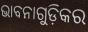
ଭାବନାଗୁଡ଼ିକର